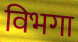
विभगा